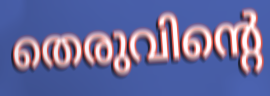
തെരുവിന്റെ